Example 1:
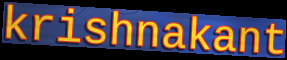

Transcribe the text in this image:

krishnakant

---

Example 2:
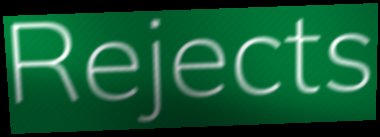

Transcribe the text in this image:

Rejects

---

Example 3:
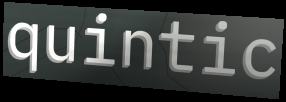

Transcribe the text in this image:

quintic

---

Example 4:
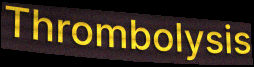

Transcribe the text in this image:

Thrombolysis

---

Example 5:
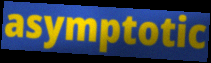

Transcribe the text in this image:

asymptotic